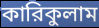
কারিকুলাম